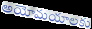
అయోమయాలకు